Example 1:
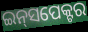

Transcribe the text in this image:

ଇନ୍‍ସପେକ୍ଟର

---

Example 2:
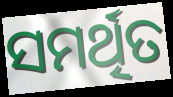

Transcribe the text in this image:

ସମର୍ଥିତ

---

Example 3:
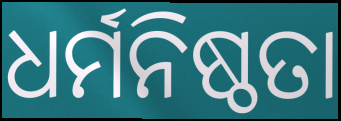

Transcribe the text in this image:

ଧର୍ମନିଷ୍ଠତା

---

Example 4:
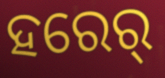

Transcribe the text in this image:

ହରେର୍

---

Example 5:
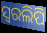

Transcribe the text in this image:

ସ୍ଵରଲିପି